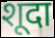
शूदा